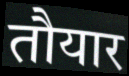
तौयार